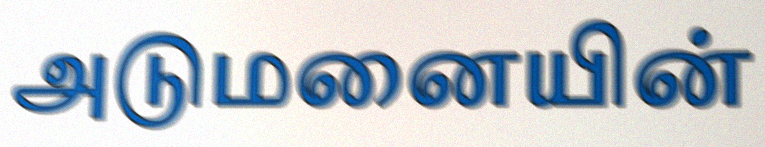
அடுமனையின்